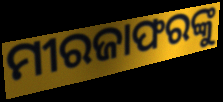
ମୀରଜାଫରଙ୍କୁ